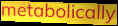
metabolically